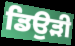
ਡਿਉੜੀ